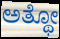
ಅತ್ಥೋ